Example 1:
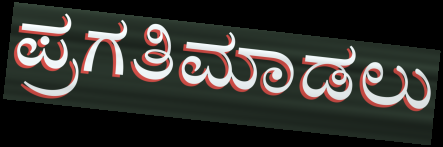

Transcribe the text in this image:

ಪ್ರಗತಿಮಾಡಲು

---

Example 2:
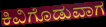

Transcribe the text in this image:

ಕಿವಿಗೊಡುವಾಗ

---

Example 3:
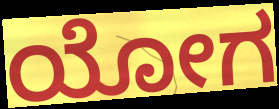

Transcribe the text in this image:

ಯೋಗ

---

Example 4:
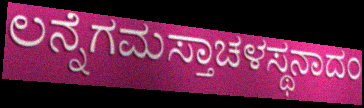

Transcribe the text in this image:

ಲನ್ನೆಗಮಸ್ತಾಚಳಸ್ಥನಾದಂ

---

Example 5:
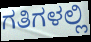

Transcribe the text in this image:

ಗತಿಗಳಲ್ಲಿ